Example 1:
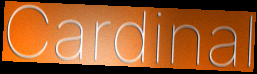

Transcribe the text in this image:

Cardinal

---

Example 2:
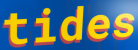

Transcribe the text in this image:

tides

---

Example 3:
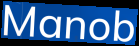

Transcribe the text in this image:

Manob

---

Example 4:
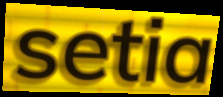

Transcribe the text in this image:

setia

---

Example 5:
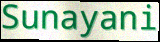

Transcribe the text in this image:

Sunayani